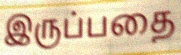
இருப்பதை